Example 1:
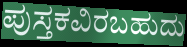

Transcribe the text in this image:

ಪುಸ್ತಕವಿರಬಹುದು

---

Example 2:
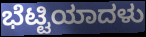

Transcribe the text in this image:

ಭೆಟ್ಟಿಯಾದಳು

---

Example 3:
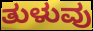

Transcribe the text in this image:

ತುಳುವು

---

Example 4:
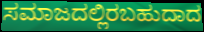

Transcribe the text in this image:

ಸಮಾಜದಲ್ಲಿರಬಹುದಾದ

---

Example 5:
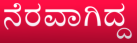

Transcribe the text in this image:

ನೆರವಾಗಿದ್ದ